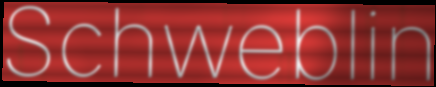
Schweblin